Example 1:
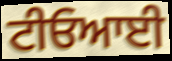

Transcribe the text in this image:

ਟੀਓਆਈ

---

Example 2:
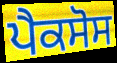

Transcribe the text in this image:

ਪੈਕਸੋਸ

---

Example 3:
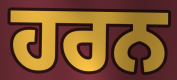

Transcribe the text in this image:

ਹਰਨ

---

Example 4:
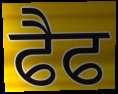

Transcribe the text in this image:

ਫੈਫ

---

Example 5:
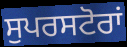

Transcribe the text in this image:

ਸੁਪਰਸਟੋਰਾਂ